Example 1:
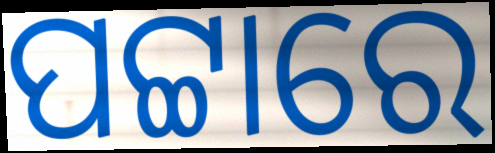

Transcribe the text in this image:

ପଟ୍ଟାରେ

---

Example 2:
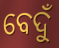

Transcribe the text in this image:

ବେଦୁଁ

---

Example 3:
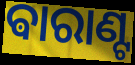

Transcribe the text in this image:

ଵାରାଣ୍ଟ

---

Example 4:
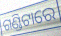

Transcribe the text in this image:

ଗଣ୍ଡିଟାରେ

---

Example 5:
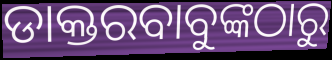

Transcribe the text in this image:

ଡାକ୍ତରବାବୁଙ୍କଠାରୁ